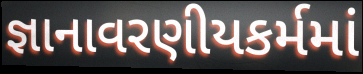
જ્ઞાનાવરણીયકર્મમાં